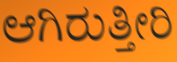
ಆಗಿರುತ್ತೀರಿ